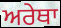
ਅਰੇਥਾ